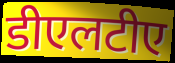
डीएलटीए